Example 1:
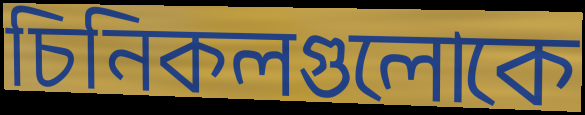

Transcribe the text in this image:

চিনিকলগুলোকে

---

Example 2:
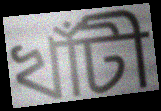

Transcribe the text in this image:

খাঁটী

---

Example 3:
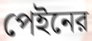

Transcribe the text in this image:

পেইনের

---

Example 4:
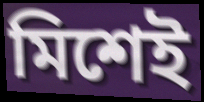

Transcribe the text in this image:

মিশেই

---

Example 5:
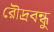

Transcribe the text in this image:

রৌদ্রবন্ধু